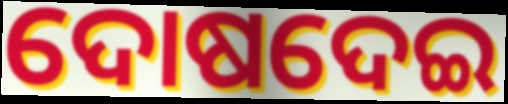
ଦୋଷଦେଇ